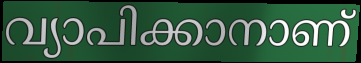
വ്യാപിക്കാനാണ്